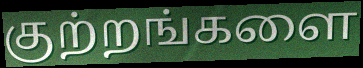
குற்றங்களை